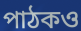
পাঠকও